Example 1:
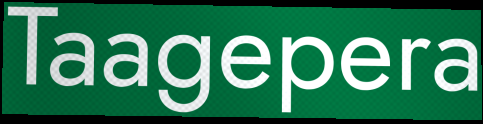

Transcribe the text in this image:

Taagepera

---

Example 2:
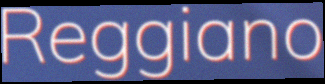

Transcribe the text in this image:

Reggiano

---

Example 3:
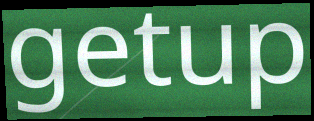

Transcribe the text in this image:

getup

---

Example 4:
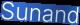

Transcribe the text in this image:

Sunand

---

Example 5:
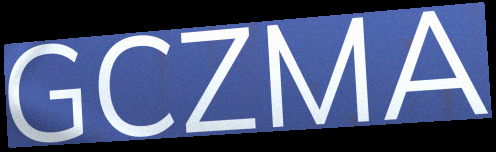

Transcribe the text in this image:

GCZMA